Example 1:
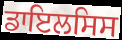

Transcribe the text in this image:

ਡਾਇਲਸਿਸ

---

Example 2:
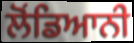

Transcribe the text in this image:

ਲੋਂਡਿਆਨੀ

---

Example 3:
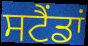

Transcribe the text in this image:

ਸਟੈਂਡਾਂ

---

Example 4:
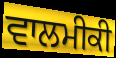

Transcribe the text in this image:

ਵਾਲਮੀਕੀ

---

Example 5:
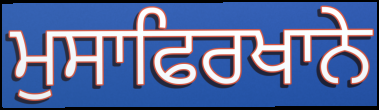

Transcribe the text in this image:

ਮੁਸਾਫਿਰਖਾਨੇ